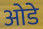
ओडे